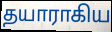
தயாராகிய